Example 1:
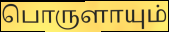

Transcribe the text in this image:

பொருளாயும்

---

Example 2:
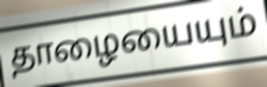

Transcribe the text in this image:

தாழையையும்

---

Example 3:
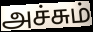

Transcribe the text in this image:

அச்சும்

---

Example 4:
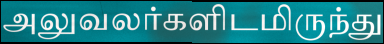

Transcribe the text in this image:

அலுவலர்களிடமிருந்து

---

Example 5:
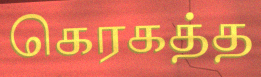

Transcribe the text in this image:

கெரகத்த